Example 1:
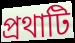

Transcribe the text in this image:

প্রথাটি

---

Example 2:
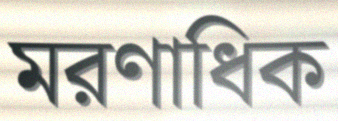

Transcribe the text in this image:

মরণাধিক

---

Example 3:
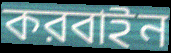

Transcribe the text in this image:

করবাইন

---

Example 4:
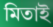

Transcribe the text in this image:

মিতাই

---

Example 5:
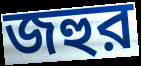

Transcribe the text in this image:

জহুর